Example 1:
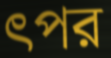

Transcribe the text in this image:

ৎপর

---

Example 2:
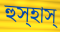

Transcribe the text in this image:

হুস্হাস্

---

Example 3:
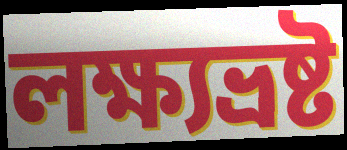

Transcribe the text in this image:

লক্ষ্যভ্রষ্ট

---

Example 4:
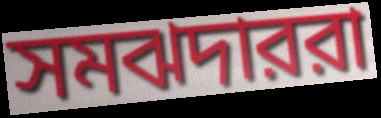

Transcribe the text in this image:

সমঝদাররা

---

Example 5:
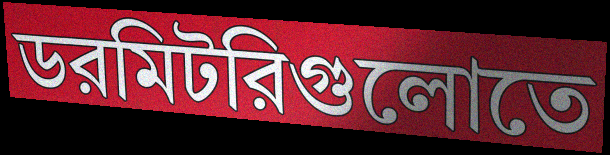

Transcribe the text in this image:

ডরমিটরিগুলোতে